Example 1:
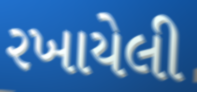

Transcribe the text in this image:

રખાયેલી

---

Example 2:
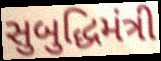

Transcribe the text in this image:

સુબુદ્ધિમંત્રી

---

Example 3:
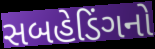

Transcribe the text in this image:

સબહેડિંગનો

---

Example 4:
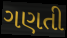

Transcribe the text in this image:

ગણતી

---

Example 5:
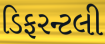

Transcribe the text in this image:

ડિફરન્ટલી